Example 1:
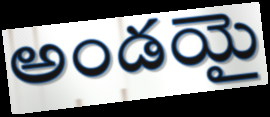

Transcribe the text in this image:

అండయై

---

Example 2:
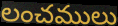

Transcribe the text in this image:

లంచములు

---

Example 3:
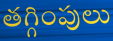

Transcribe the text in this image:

తగ్గింపులు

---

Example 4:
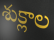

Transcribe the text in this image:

శుక్లాల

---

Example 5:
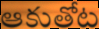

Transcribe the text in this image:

ఆకుతోట